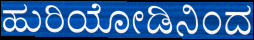
ಹುರಿಯೋಡಿನಿಂದ